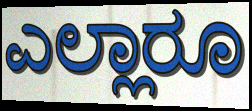
ಎಲ್ಲಾರೂ